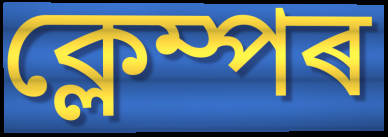
ক্লেম্পৰ